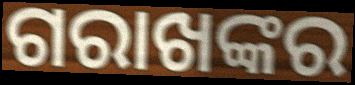
ଗରାଖଙ୍କର